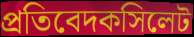
প্রতিবেদকসিলেট